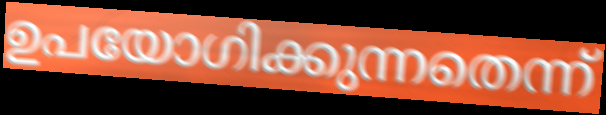
ഉപയോഗിക്കുന്നതെന്ന്